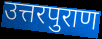
उत्तरपुराण